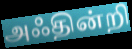
அஃதின்றி